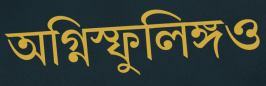
অগ্নিস্ফুলিঙ্গও